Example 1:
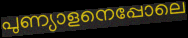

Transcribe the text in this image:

പുണ്യാളനെപ്പോലെ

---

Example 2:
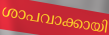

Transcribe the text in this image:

ശാപവാക്കായി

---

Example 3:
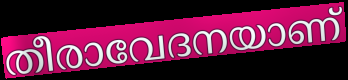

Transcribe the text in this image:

തീരാവേദനയാണ്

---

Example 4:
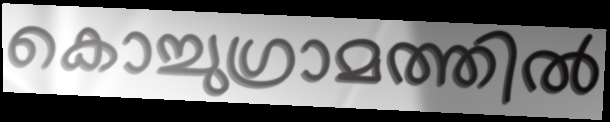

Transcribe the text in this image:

കൊച്ചുഗ്രാമത്തിൽ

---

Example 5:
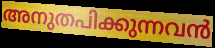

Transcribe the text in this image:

അനുതപിക്കുന്നവൻ